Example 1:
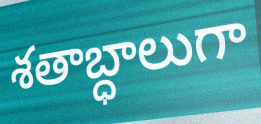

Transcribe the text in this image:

శతాబ్ధాలుగా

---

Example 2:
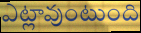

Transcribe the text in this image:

ఎట్లావుంటుంది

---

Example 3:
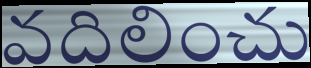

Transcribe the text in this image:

వదిలించు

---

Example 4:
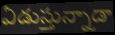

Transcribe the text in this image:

ఏడుస్తున్నాడా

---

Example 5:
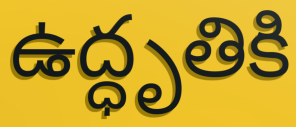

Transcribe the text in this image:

ఉద్ధృతికి